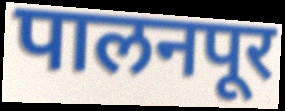
पालनपूर